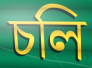
চলি